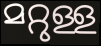
മറ്റുള്ള